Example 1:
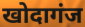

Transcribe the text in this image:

खोदागंज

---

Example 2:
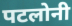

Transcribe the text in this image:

पटलोनी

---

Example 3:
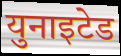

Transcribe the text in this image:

युनाइटेड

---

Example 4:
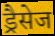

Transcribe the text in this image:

ड्रैसेज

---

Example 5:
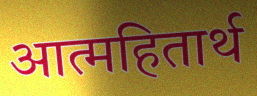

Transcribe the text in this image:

आत्महितार्थ